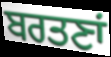
ਬਰਤਣਾਂ